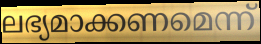
ലഭ്യമാക്കണമെന്ന്